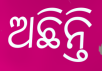
ଅଛିନ୍ତି